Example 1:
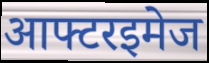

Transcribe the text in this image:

आफ्टरइमेज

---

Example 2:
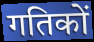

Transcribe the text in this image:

गतिकों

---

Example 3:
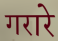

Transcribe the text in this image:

गरारे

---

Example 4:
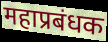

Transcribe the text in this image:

महाप्रबंधक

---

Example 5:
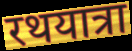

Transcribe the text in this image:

रथयात्रा